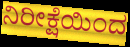
ನಿರೀಕ್ಷೆಯಿಂದ